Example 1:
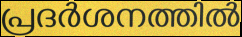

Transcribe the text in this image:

പ്രദർശനത്തിൽ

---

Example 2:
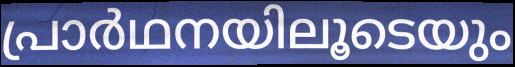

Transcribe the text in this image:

പ്രാർഥനയിലൂടെയും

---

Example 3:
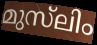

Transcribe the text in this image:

മുസ്‌ലിം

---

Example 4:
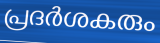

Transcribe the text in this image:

പ്രദർശകരും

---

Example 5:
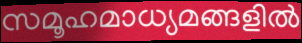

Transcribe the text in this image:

സമൂഹമാധ്യമങ്ങളിൽ